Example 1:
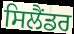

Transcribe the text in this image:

ਸਿਲੈਂਡਰ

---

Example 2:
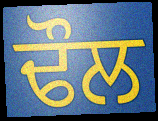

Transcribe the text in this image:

ਢੌਲ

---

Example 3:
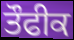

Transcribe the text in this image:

ਤੌਫੀਕ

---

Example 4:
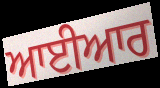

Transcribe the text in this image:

ਆਈਆਰ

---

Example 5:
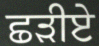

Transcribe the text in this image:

ਛੜੀਏ